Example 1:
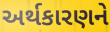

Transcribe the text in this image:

અર્થકારણને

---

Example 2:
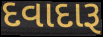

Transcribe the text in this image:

દવાદારૂ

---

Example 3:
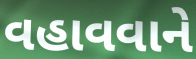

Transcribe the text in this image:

વહાવવાને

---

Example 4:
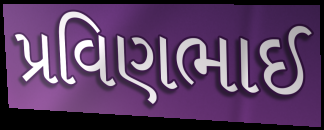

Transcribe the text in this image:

પ્રવિણભાઈ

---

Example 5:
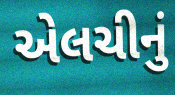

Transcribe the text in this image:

એલચીનું